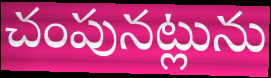
చంపునట్లును